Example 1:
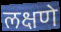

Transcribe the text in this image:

लक्षणे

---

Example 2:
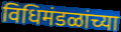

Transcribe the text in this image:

विधिमंडळांच्या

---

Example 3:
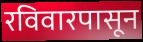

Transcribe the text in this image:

रविवारपासून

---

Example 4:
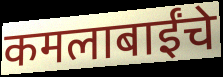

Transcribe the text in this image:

कमलाबाईंचे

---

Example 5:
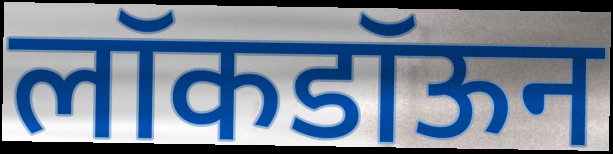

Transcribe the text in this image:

लॉकडॉऊन